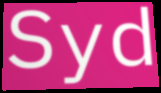
Syd